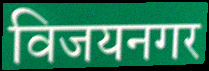
विजयनगर